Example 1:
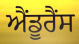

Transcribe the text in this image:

ਐਂਡੂਰੈਂਸ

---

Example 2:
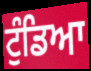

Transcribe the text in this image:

ਟੁੰਡਿਆ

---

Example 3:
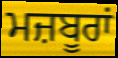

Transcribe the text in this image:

ਮਜ਼ਬੂਰਾਂ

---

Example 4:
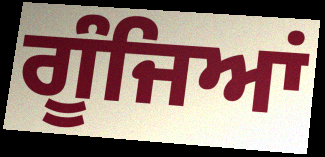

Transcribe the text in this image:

ਗੂੰਜਿਆਂ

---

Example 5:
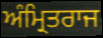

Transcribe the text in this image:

ਅੰਮ੍ਰਿਤਰਾਜ